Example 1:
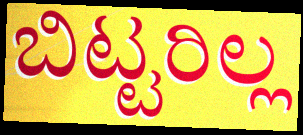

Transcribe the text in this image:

ಬಿಟ್ಟರಿಲ್ಲ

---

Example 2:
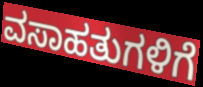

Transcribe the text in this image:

ವಸಾಹತುಗಳಿಗೆ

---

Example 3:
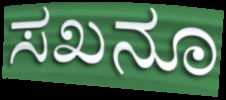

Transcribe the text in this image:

ಸಖನೂ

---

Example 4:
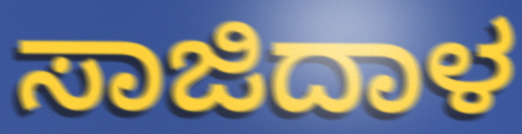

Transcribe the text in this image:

ಸಾಜಿದಾಳ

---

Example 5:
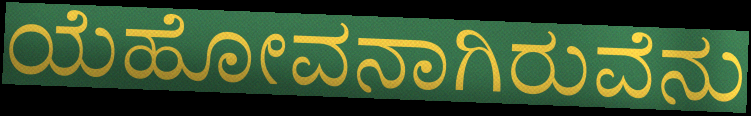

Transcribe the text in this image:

ಯೆಹೋವನಾಗಿರುವೆನು